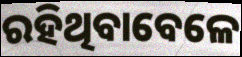
ରହିଥିବାବେଳେ